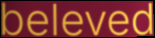
beleved